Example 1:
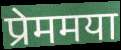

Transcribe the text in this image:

प्रेममया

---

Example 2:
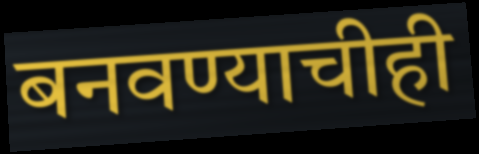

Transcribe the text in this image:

बनवण्याचीही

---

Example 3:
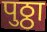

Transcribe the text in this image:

पुठ्ठा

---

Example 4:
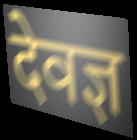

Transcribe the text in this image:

देवज्ञ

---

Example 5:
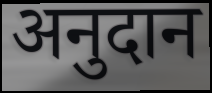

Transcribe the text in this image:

अनुदान